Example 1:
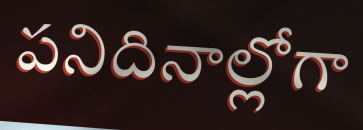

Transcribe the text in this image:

పనిదినాల్లోగా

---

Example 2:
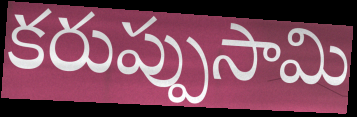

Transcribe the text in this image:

కరుప్పుసామి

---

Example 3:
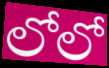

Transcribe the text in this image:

లోలో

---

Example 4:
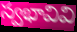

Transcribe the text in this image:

స్వభావివి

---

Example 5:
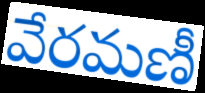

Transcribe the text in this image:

వేరమణీ